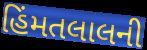
હિંમતલાલની